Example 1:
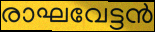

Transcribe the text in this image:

രാഘവേട്ടൻ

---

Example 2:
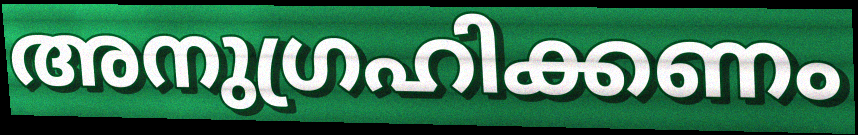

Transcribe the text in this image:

അനുഗ്രഹിക്കണം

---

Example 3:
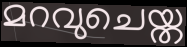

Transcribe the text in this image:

മറവുചെയ്ത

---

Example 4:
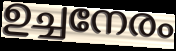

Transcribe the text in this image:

ഉച്ചനേരം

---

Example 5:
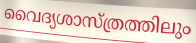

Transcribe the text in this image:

വൈദ്യശാസ്ത്രത്തിലും